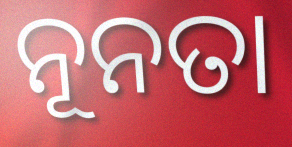
ନୂନତା